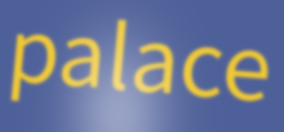
palace